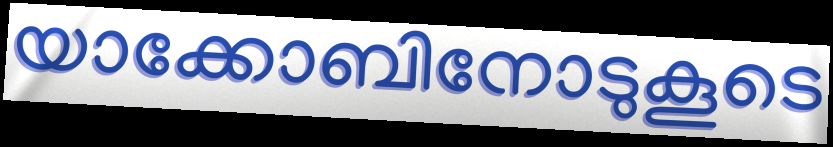
യാക്കോബിനോടുകൂടെ